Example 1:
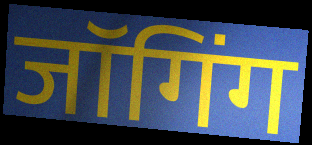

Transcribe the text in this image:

जॉगिंग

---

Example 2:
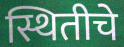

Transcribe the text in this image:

स्थितीचे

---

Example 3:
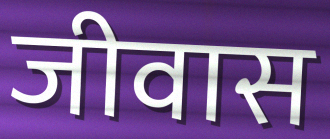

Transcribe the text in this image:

जीवास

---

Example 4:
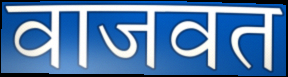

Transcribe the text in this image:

वाजवत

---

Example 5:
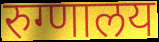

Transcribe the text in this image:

रुग्णालय